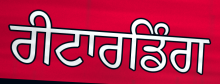
ਰੀਟਾਰਡਿੰਗ